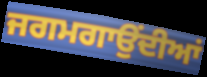
ਜਗਮਗਾਉਂਦੀਆਂ